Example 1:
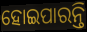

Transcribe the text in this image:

ହୋଇପାରନ୍ତି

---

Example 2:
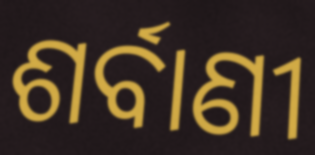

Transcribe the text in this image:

ଶର୍ବାଣୀ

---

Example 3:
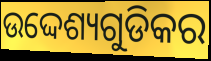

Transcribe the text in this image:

ଉଦ୍ଦେଶ୍ୟଗୁଡିକର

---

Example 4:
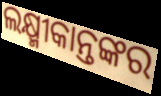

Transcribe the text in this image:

ଲକ୍ଷ୍ମୀକାନ୍ତଙ୍କର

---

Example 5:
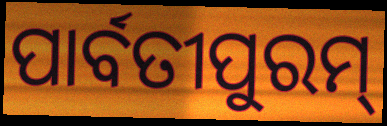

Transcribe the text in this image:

ପାର୍ବତୀପୁରମ୍